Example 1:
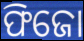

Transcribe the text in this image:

ଫିଜୋ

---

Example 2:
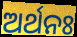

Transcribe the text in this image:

ଅର୍ଥନଃ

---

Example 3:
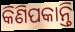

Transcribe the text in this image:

କିଣିପକାନ୍ତି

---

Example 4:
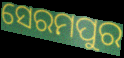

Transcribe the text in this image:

ସେରମପୁର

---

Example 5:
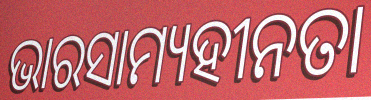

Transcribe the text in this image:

ଭାରସାମ୍ୟହୀନତା